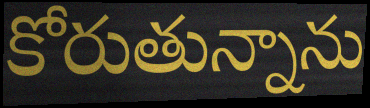
కోరుతున్నాను